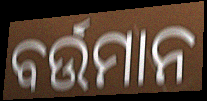
ବର୍ଉମାନ